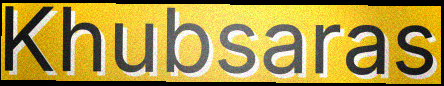
Khubsaras